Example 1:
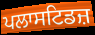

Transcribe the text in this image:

ਪਲਾਸਟਿਡਜ਼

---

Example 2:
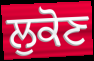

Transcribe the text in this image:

ਲੁਕੋਣ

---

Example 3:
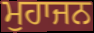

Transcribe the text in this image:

ਮੁਹਾਜਨ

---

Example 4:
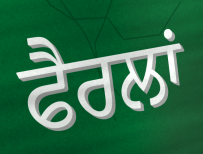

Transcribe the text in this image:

ਫੈਰਲਾਂ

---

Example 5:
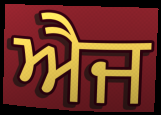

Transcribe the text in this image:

ਐਜ